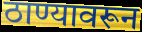
ठाण्यावरून